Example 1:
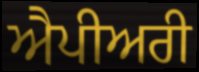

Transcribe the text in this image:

ਐਪੀਅਰੀ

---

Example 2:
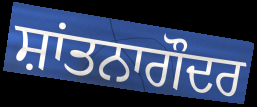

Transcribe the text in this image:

ਸ਼ਾਂਤਨਾਗੌਦਰ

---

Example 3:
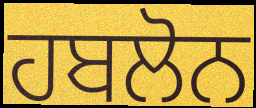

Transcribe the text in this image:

ਹਬਲੋਨ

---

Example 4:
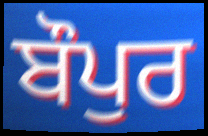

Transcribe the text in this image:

ਬੌਪੁਰ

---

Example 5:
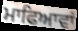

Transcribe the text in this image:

ਮਾਫਿਆਵਾਂ